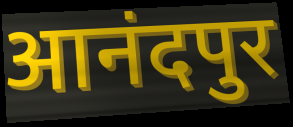
आनंदपुर